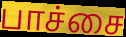
பாச்சை